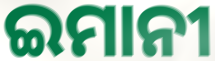
ଇମାନୀ